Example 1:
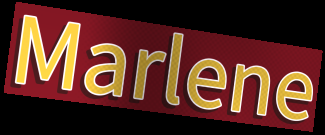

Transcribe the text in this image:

Marlene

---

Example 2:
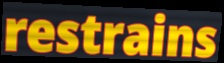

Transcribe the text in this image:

restrains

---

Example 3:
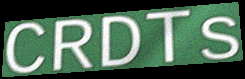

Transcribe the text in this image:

CRDTs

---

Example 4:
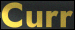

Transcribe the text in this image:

Curr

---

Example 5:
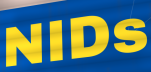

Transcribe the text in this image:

NIDs